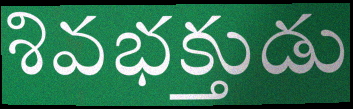
శివభక్తుడు